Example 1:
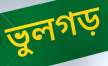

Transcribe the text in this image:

ভুলগড়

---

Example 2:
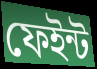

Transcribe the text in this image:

ফেইন্ট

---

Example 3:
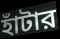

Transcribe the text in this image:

হাঁটার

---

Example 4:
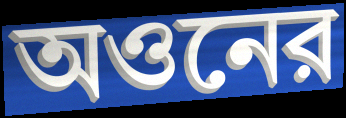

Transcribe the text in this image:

অওনের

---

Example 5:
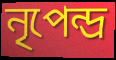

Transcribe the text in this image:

নৃপেন্দ্র